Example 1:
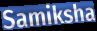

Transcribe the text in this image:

Samiksha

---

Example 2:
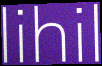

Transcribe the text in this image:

lihil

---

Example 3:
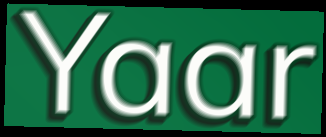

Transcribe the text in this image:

Yaar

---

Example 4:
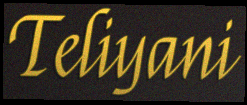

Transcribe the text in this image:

Teliyani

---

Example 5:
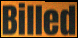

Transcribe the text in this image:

Billed